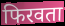
फिरवता